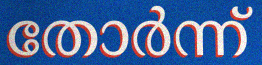
തോർന്ന്